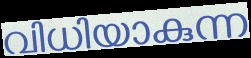
വിധിയാകുന്ന